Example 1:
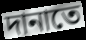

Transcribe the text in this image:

দানাতে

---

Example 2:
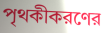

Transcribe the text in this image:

পৃথকীকরণের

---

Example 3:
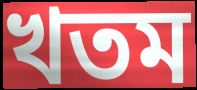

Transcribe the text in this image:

খতম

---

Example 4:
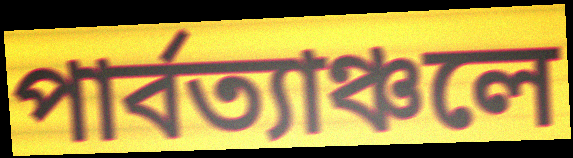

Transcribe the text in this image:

পার্বত্যাঞ্চলে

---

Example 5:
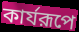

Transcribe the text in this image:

কার্যরূপে